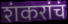
शंकरांचं